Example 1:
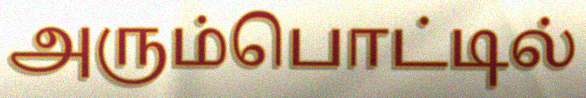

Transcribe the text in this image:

அரும்பொட்டில்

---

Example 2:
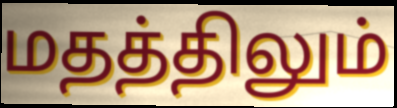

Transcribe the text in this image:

மதத்திலும்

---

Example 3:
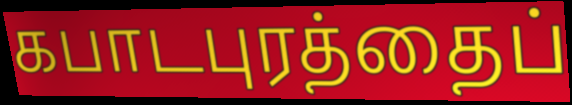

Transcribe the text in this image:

கபாடபுரத்தைப்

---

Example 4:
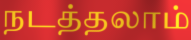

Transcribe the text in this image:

நடத்தலாம்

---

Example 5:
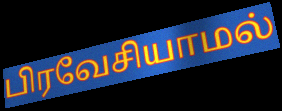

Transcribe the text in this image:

பிரவேசியாமல்